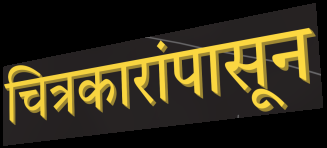
चित्रकारांपासून